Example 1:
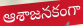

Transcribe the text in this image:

ఆశాజనకంగా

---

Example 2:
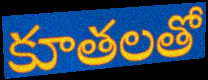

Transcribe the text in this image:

కూతలతో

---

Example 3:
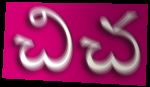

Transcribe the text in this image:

చిచ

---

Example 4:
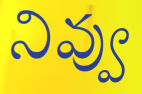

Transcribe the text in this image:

నివ్వు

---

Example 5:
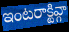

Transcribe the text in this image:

ఇంటరాక్టివ్గా